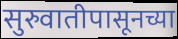
सुरुवातीपासूनच्या